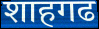
शाहगढ